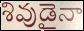
శివుడైనా